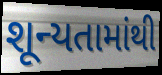
શૂન્યતામાંથી